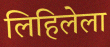
लिहिलेला